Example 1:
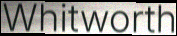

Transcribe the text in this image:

Whitworth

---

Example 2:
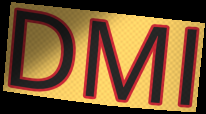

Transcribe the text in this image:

DMI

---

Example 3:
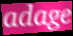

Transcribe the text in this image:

adage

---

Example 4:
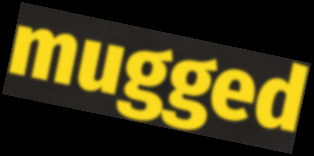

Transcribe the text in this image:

mugged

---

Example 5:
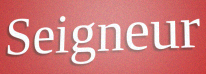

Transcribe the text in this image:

Seigneur